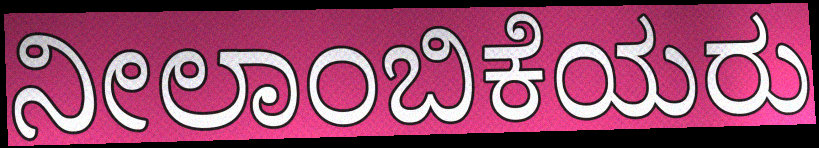
ನೀಲಾಂಬಿಕೆಯರು